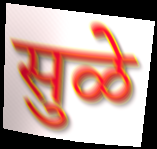
सुळे